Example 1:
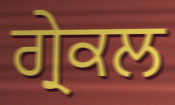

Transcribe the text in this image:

ਗ੍ਰੇਕਲ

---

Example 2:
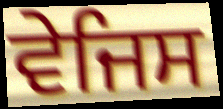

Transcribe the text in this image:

ਵੇਜਿਸ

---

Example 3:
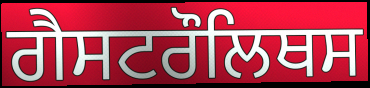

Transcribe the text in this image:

ਗੈਸਟਰੌਲਿਥਸ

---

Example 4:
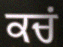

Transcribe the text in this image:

ਕਚਂ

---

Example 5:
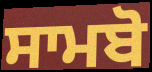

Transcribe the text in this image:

ਸਾਮਬੋ